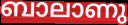
ബാലാണു